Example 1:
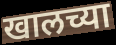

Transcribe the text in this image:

खालच्या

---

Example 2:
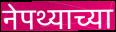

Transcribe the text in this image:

नेपथ्याच्या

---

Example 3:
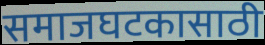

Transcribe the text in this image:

समाजघटकासाठी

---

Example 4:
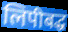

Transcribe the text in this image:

लिपीबद्ध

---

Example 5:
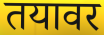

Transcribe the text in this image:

तयावर